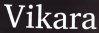
Vikara